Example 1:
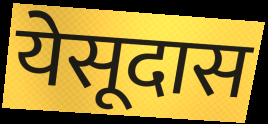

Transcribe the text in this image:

येसूदास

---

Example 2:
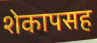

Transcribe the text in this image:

शेकापसह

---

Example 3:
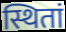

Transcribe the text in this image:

स्थितां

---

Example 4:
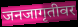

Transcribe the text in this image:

जनजागृतीवर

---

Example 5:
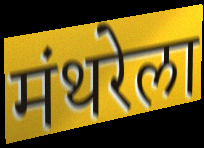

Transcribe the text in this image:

मंथरेला